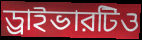
ড্রাইভারটিও